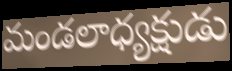
మండలాధ్యక్షుడు